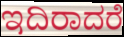
ಇದಿರಾದರೆ